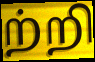
ற்றி